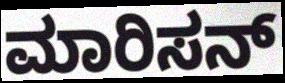
ಮಾರಿಸನ್